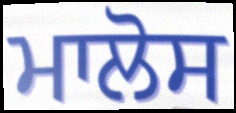
ਮਾਲੋਸ